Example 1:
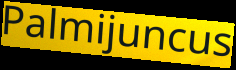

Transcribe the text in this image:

Palmijuncus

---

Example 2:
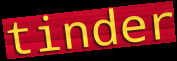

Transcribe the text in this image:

tinder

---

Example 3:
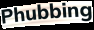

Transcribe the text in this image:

Phubbing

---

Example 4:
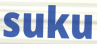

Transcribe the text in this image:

suku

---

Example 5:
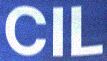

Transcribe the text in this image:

CIL